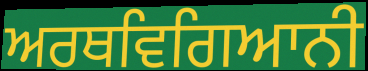
ਅਰਥਵਿਗਿਆਨੀ